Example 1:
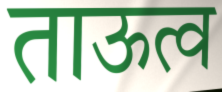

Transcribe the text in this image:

ताऊत्व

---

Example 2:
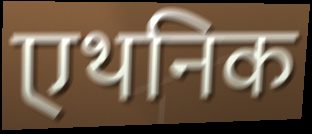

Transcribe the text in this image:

एथनिक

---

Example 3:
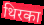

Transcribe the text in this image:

थिरका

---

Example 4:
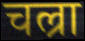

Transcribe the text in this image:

चल्रा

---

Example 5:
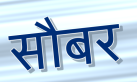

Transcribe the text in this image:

सौबर